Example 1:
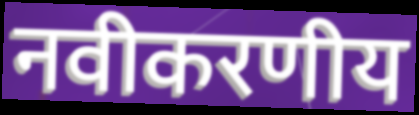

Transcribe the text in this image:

नवीकरणीय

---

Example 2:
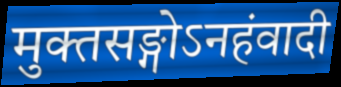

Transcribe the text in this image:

मुक्तसङ्गोऽनहंवादी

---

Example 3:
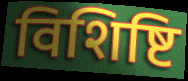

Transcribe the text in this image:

विशिष्टि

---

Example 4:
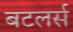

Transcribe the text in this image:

बटलर्स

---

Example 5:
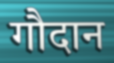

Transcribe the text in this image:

गौदान